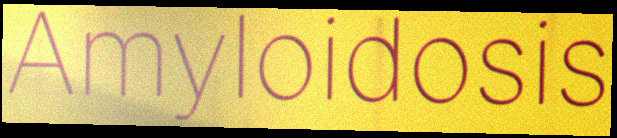
Amyloidosis